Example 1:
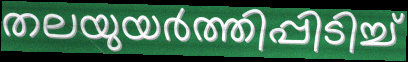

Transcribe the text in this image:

തലയുയർത്തിപ്പിടിച്ച്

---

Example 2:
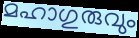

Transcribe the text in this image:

മഹാഗുരുവും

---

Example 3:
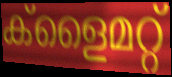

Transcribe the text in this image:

ക്ളൈമറ്റ്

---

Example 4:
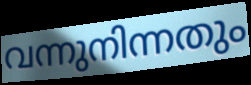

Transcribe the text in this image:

വന്നുനിന്നതും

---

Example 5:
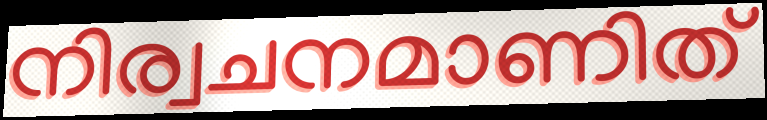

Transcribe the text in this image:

നിര്വചനമാണിത്